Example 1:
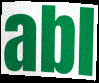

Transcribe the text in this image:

abl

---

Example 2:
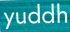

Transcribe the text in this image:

yuddh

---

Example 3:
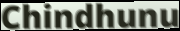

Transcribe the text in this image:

Chindhunu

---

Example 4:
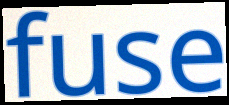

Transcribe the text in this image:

fuse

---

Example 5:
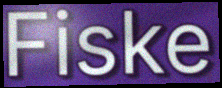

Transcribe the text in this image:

Fiske